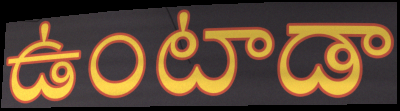
ఉంటాడా